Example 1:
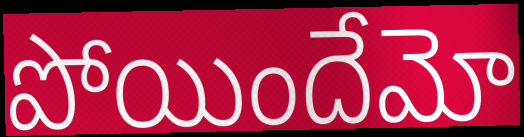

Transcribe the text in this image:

పోయిందేమో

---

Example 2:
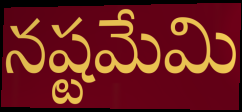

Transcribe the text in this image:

నష్టమేమి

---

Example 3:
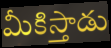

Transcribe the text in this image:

మీకిస్తాడు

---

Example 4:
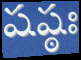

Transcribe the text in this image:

షష్ఠః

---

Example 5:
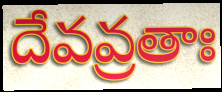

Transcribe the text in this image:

దేవవ్రతాః